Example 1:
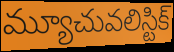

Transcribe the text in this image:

మ్యూచువలిస్టిక్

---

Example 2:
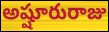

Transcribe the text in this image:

అష్షూరురాజు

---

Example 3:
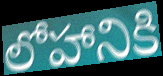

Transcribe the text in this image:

లోహానికి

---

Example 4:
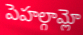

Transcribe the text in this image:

పెహల్గామ్లో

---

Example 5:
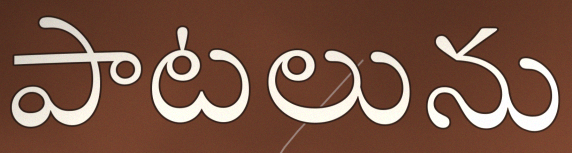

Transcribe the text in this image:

పాటలును